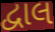
દ્વાલ